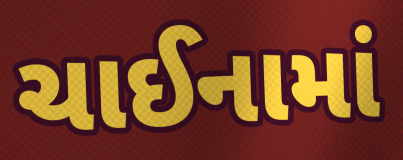
ચાઈનામાં